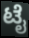
ಟೈ